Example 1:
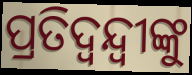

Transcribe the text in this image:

ପ୍ରତିଦ୍ବନ୍ଦ୍ବୀଙ୍କୁ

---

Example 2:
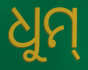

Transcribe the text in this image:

ଧୁମ୍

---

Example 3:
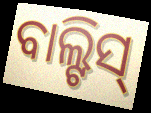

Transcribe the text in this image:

ବାଲ୍ଟିସ୍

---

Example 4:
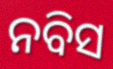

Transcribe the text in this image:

ନବିସ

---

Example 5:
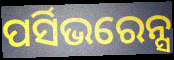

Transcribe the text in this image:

ପର୍ସିଭରେନ୍ସ